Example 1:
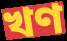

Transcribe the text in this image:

খণ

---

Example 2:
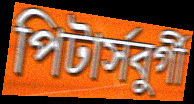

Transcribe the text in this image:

পিটার্সবুর্গী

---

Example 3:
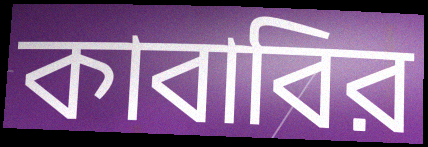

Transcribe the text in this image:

কাবাবির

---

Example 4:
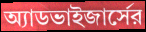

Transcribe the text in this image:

অ্যাডভাইজার্সের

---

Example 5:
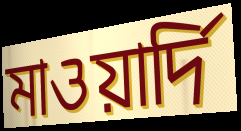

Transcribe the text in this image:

মাওয়ার্দি